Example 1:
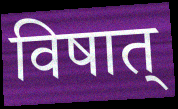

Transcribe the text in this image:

विषात्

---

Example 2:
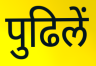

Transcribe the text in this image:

पुढिलें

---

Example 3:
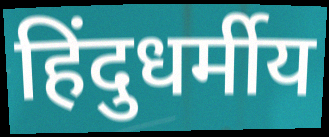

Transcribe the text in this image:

हिंदुधर्मीय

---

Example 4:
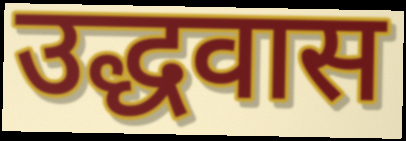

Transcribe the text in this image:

उद्धवास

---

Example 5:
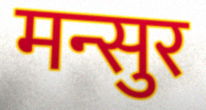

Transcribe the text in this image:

मन्सुर